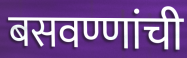
बसवण्णांची